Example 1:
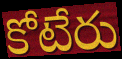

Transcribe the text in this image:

కోటేరు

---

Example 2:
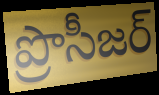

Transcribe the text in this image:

ప్రొసీజర్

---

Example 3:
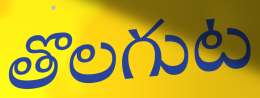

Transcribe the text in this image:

తొలగుట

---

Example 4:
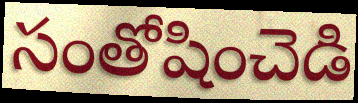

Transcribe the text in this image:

సంతోషించెడి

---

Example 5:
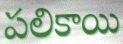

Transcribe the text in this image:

పలికాయి